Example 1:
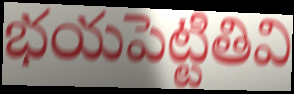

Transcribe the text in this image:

భయపెట్టితివి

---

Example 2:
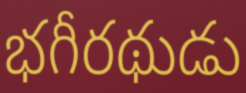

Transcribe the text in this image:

భగీరథుడు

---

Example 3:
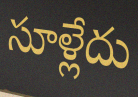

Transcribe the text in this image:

సూళ్లేదు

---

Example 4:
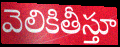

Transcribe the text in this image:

వెలికితీస్తూ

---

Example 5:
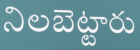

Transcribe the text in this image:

నిలబెట్టారు